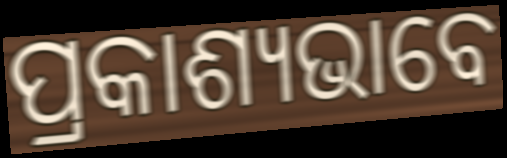
ପ୍ରକାଶ୍ୟଭାବେ